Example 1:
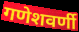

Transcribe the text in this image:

गणेशवर्णी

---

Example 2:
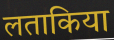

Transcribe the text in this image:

लताकिया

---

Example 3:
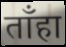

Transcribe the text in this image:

ताँहा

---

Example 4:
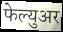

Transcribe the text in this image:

फेल्युअर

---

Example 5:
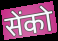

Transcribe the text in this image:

सेंको